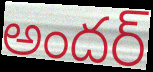
అందర్